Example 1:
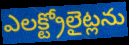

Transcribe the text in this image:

ఎలక్ట్రోలైట్లను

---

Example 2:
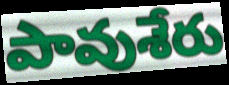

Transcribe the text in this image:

పావుశేరు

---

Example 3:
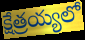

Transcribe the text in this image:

క్షేత్రయ్యలో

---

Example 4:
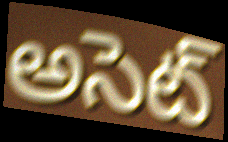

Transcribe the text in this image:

అసెట్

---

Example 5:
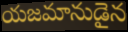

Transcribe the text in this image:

యజమానుడైన